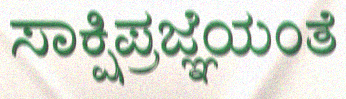
ಸಾಕ್ಷಿಪ್ರಜ್ಞೆಯಂತೆ